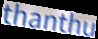
thanthu